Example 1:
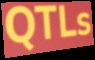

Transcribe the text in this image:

QTLs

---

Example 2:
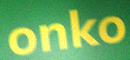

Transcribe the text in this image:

onko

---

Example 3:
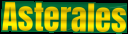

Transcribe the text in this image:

Asterales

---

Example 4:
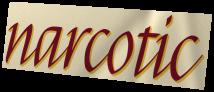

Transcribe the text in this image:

narcotic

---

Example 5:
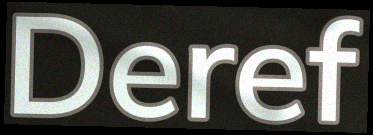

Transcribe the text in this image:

Deref